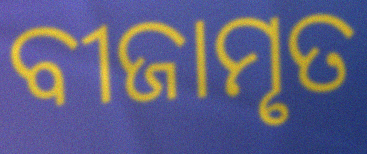
ବୀଜାମୃତ